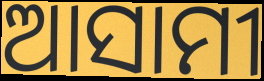
ଆସାମୀ